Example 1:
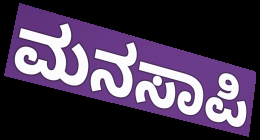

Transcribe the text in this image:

ಮನಸಾಪಿ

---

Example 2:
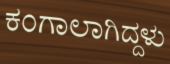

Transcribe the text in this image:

ಕಂಗಾಲಾಗಿದ್ದಳು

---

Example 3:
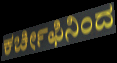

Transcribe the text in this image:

ಕರ್ಚೀಫಿನಿಂದ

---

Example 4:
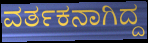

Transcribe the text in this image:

ವರ್ತಕನಾಗಿದ್ದ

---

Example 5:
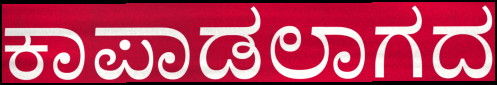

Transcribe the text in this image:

ಕಾಪಾಡಲಾಗದ